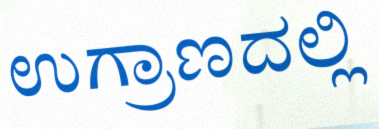
ಉಗ್ರಾಣದಲ್ಲಿ